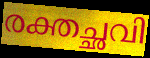
രക്തച്ഛവി